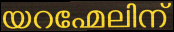
യറഹ്മേലിന്